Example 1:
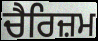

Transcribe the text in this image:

ਚੈਰਿਜ਼ਮ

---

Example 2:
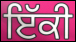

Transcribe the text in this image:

ਇੱਕੀ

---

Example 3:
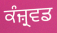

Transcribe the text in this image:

ਕੰਜ਼੍ਰਵਡ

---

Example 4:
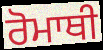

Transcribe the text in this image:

ਰੋਮਾਥੀ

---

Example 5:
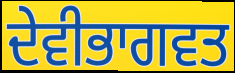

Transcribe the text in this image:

ਦੇਵੀਭਾਗਵਤ